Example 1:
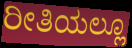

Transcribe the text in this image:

ರೀತಿಯಲ್ಲೂ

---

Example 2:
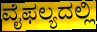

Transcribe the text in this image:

ವೈಫಲ್ಯದಲ್ಲಿ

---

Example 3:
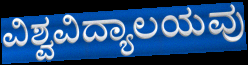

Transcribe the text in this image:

ವಿಶ್ವವಿದ್ಯಾಲಯವು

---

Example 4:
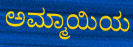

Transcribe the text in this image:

ಅಮ್ಮಾಯಿಯ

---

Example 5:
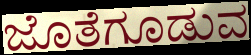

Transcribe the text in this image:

ಜೊತೆಗೂಡುವ